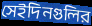
সেইদিনগুলির